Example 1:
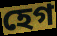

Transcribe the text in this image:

হেগ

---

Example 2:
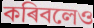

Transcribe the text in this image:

কৰিবলেও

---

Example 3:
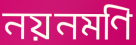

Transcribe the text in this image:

নয়নমণি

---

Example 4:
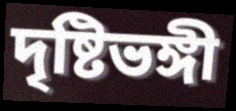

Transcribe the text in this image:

দৃষ্টিভঙ্গী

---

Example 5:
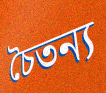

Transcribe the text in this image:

চৈতন্য